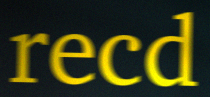
recd